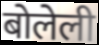
बोलेली